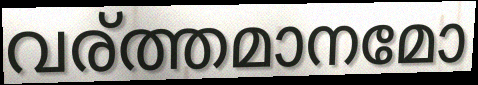
വര്ത്തമാനമോ